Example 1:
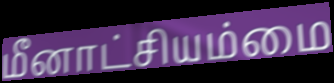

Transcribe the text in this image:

மீனாட்சியம்மை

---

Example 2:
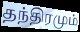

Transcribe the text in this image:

தந்திரமும்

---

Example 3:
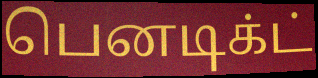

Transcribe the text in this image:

பெனடிக்ட்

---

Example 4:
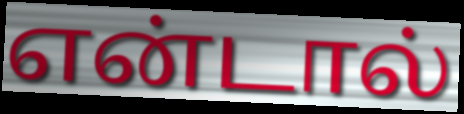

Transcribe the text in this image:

என்டால்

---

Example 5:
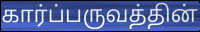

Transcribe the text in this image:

கார்ப்பருவத்தின்